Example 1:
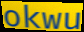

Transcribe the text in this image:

okwu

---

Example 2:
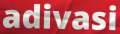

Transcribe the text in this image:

adivasi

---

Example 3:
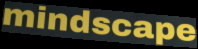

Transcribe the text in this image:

mindscape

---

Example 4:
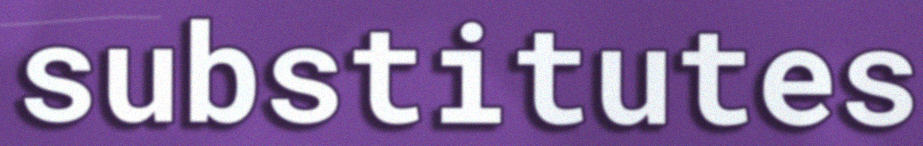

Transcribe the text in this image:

substitutes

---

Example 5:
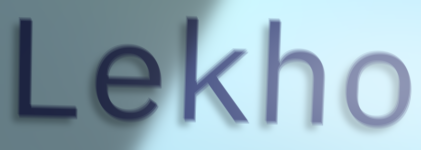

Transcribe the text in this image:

Lekho